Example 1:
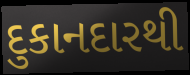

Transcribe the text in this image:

દુકાનદારથી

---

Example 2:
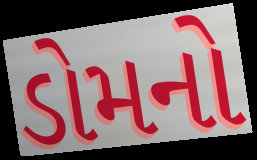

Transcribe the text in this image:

ડોમનો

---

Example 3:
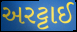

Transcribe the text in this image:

અરટ્ટાઈ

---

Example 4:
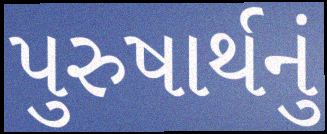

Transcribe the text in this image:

પુરુષાર્થનું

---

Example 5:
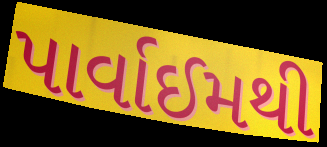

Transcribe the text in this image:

પાર્વાઈમથી